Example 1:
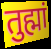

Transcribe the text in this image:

तुह्मां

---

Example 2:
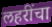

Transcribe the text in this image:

लहरींचा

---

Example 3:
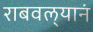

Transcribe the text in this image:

राबवल्यानं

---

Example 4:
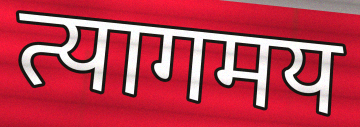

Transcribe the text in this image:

त्यागमय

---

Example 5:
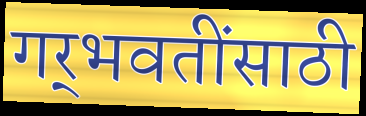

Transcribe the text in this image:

गर्भवतींसाठी